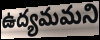
ఉద్యమమని